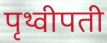
पृथ्वीपती